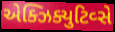
એક્ઝિક્યુટિવ્સે